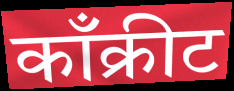
काँक्रीट